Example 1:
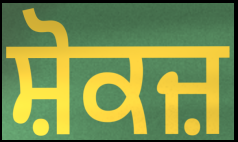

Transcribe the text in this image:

ਸ਼ੋਕਜ਼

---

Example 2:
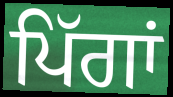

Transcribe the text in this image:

ਪਿੱਗਾਂ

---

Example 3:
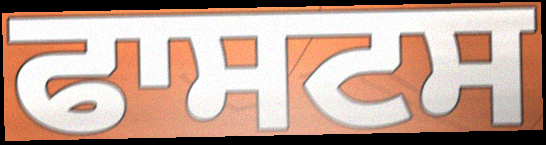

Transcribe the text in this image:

ਫਾਸਟਸ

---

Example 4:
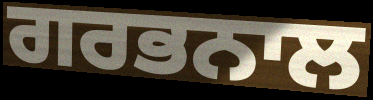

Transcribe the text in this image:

ਗਰਭਨਾਲ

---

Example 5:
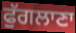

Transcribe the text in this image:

ਫੁੱਗਲਾਣਾ